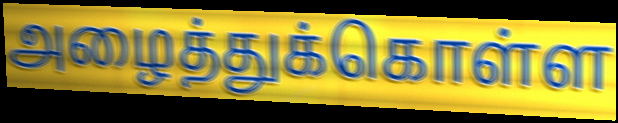
அழைத்துக்கொள்ள